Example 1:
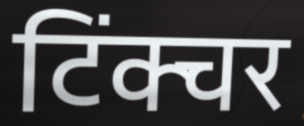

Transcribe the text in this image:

टिंक्चर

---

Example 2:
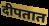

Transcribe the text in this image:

दीपतात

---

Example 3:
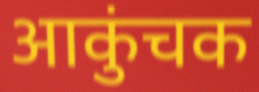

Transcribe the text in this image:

आकुंचक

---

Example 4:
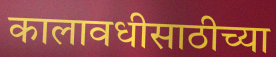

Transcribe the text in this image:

कालावधीसाठीच्या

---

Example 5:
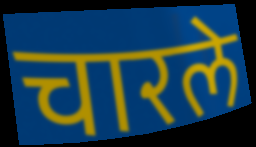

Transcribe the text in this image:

चारले